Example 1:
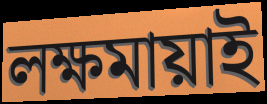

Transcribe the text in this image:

লক্ষমায়াই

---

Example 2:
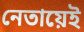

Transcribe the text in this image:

নেতায়েই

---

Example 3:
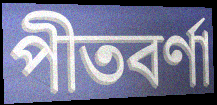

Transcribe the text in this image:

পীতবৰ্ণা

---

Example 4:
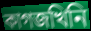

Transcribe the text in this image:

কাগজখিনি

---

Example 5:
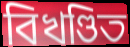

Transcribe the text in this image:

বিখণ্ডিত